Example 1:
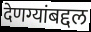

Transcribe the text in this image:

देणग्यांबद्दल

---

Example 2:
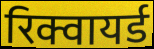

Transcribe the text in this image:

रिक्वायर्ड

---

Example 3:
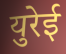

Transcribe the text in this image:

युरेई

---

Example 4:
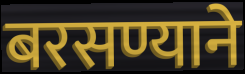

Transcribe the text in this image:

बरसण्याने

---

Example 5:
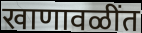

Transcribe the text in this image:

खाणावळींत